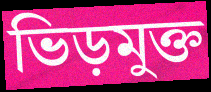
ভিড়মুক্ত